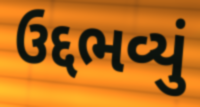
ઉદ્દભવ્યું